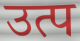
उत्प